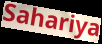
Sahariya